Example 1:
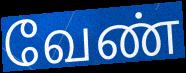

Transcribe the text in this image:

வேண்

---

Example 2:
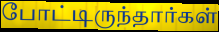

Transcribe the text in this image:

போட்டிருந்தார்கள்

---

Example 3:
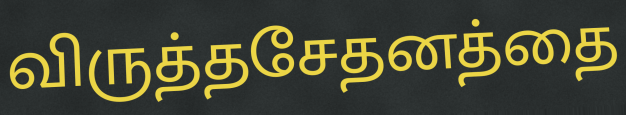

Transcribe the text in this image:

விருத்தசேதனத்தை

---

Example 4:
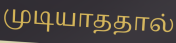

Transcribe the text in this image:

முடியாததால்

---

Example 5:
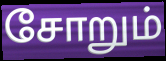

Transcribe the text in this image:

சோறும்